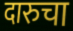
दारुचा